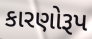
કારણોરૂપ